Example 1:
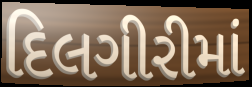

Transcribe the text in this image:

દિલગીરીમાં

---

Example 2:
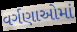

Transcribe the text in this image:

વર્ગણાઓમાં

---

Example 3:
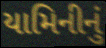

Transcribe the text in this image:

યામિનીનું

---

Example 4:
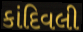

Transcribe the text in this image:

કાંદિવલી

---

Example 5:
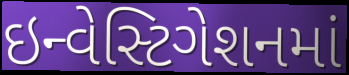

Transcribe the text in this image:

ઇન્વેસ્ટિગેશનમાં